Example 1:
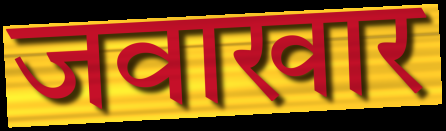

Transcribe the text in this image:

जवाखार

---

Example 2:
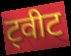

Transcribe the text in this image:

ट्‍वीट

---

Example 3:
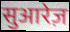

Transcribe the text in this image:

सुआरेज़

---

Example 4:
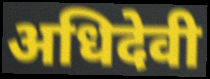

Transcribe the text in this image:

अधिदेवी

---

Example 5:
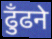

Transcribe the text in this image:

ढुँढने